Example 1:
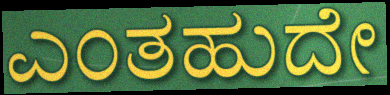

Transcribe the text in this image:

ಎಂತಹುದೇ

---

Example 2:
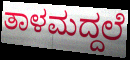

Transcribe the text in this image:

ತಾಳಮದ್ದಲೆ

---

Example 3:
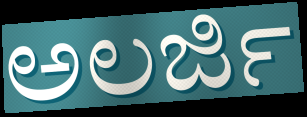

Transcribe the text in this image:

ಅಲರ್ಜಿ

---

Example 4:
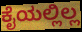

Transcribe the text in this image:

ಕೈಯಲ್ಲಿಲ್ಲ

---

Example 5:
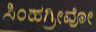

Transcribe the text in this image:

ಸಿಂಹಗ್ರೀವೋ